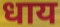
धाय